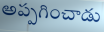
అప్పగించాడు